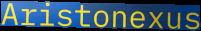
Aristonexus